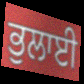
ਭੁਲਾਈ